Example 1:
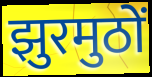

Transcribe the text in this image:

झुरमुठों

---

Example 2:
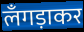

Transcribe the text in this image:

लँगड़ाकर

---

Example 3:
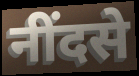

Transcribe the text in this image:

नींदसे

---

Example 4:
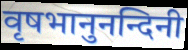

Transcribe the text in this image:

वृषभानुनन्दिनी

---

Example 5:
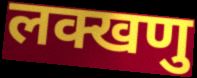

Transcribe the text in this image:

लक्खणु